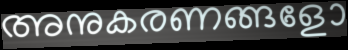
അനുകരണങ്ങളോ